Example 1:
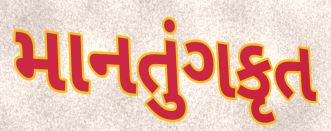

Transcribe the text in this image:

માનતુંગકૃત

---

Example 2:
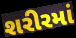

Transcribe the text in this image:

શરીરમાં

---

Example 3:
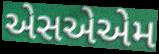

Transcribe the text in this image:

એસએએમ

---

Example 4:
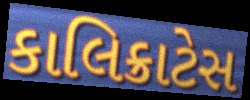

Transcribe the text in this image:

કાલિક્રાટેસ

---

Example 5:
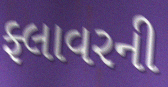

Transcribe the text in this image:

ફ્લાવરની